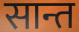
सान्त